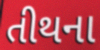
તીથના